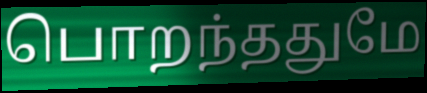
பொறந்ததுமே